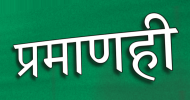
प्रमाणही